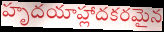
హృదయాహ్లాదకరమైన